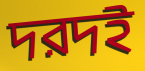
দরদই